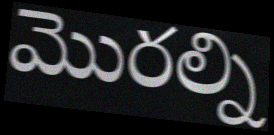
మొరల్ని